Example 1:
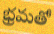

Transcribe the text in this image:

భ్రమతో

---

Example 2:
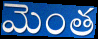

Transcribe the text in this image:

మెంత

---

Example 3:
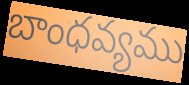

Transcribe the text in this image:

బాంధవ్యము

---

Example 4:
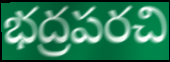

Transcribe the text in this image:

భద్రపరచి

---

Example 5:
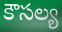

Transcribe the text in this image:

కౌసల్య